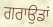
ਗਰਾਉਡਾਂ